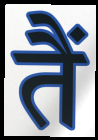
तैं